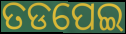
ତଡପେଇ